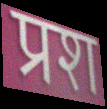
प्रश